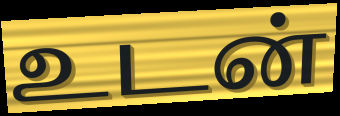
உடன்